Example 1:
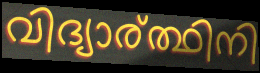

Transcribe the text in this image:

വിദ്യാര്ത്ഥിനി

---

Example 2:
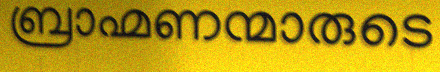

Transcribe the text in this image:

ബ്രാഹ്മണന്മാരുടെ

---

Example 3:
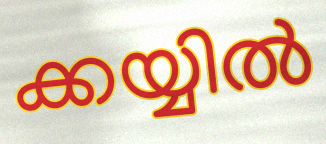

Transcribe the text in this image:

ക്കയ്യിൽ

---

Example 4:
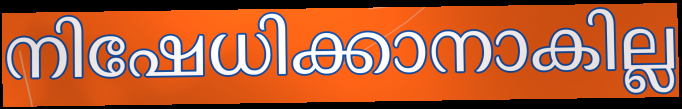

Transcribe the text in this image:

നിഷേധിക്കാനാകില്ല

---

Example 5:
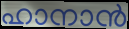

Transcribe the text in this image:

ഹാനാൻ